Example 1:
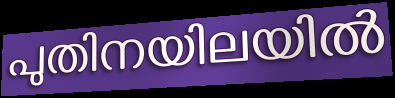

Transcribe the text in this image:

പുതിനയിലയിൽ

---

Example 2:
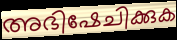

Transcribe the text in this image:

അഭിഷേചിക്കുക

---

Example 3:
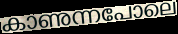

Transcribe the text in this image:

കാണുന്നപോലെ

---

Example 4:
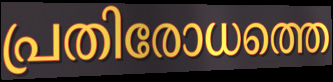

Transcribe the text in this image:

പ്രതിരോധത്തെ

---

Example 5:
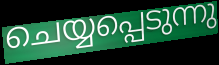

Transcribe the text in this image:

ചെയ്യപ്പെടുന്നു